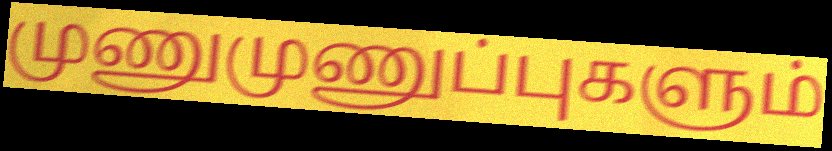
முணுமுணுப்புகளும்